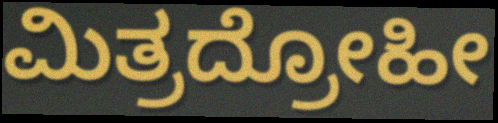
ಮಿತ್ರದ್ರೋಹೀ